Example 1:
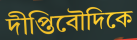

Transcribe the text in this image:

দীপ্তিবৌদিকে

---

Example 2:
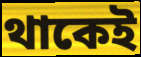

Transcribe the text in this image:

থাকেই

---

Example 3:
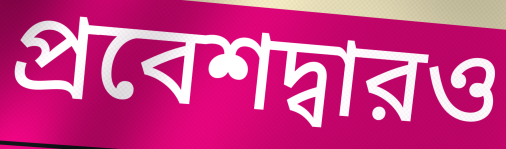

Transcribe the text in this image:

প্রবেশদ্বারও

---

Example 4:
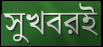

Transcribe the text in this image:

সুখবরই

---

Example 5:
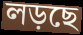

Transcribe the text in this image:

লড়ছে